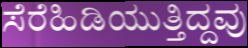
ಸೆರೆಹಿಡಿಯುತ್ತಿದ್ದವು